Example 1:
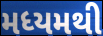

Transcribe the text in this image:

મધ્યમથી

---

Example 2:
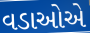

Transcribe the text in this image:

વડાઓએ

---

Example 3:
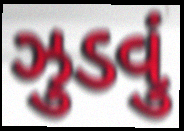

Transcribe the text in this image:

ઝુડવું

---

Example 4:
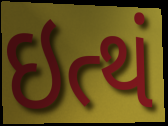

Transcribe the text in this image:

ઇત્થં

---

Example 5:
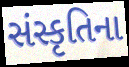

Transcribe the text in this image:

સંસ્કૃતિના